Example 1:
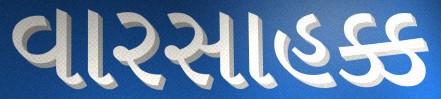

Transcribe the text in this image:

વારસાહક્ક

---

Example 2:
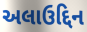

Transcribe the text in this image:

અલાઉદ્દિન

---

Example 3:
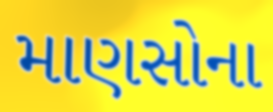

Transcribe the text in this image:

માણસોના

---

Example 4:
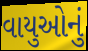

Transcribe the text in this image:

વાયુઓનું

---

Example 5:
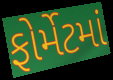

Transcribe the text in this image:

ફોર્મેટમાં